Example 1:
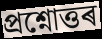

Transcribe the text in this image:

প্ৰশ্নোত্তৰ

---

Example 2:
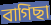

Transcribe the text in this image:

বাগিছা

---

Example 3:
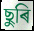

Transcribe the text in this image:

ছুৰি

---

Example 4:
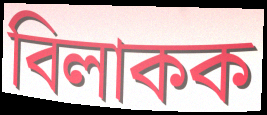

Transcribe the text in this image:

বিলাকক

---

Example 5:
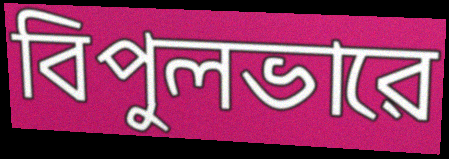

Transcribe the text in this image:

বিপুলভাৱে